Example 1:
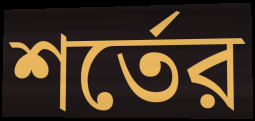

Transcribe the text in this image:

শর্তের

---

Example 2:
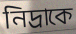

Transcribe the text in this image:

নিদ্রাকে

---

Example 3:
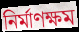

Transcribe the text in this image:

নির্মাণক্ষম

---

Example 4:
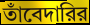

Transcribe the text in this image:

তাঁবেদারির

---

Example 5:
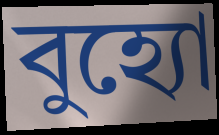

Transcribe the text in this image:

বুহ্যো